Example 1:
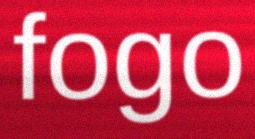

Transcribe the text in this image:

fogo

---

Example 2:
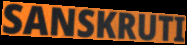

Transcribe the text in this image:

SANSKRUTI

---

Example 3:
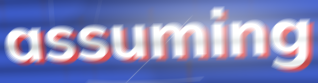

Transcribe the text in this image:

assuming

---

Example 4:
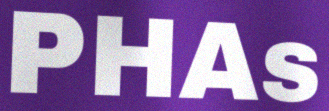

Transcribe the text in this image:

PHAs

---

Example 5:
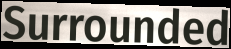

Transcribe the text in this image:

Surrounded